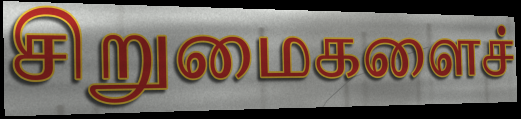
சிறுமைகளைச்